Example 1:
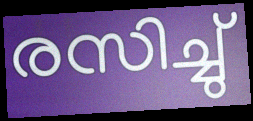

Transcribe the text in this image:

രസിച്ചു്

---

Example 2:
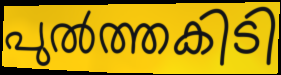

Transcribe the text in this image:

പുൽത്തകിടി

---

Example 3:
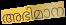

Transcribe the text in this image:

അഭിമാന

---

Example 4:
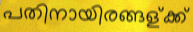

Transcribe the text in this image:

പതിനായിരങ്ങള്ക്ക്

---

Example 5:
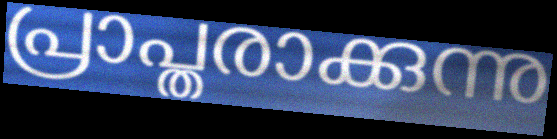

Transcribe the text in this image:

പ്രാപ്തരാക്കുന്നു